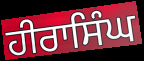
ਹੀਰਾਸਿੰਘ